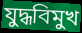
যুদ্ধবিমুখ